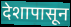
देशापासून